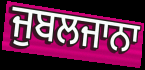
ਜੁਬਲਜਾਨਾ